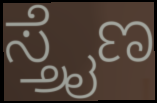
ಸ್ತ್ರೈಣ